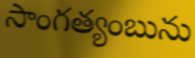
సాంగత్యంబును